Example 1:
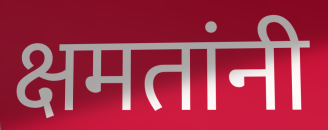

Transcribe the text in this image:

क्षमतांनी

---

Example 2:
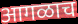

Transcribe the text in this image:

आगळाच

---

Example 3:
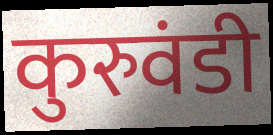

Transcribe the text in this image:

कुरुवंडी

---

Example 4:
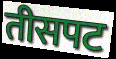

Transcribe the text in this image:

तीसपट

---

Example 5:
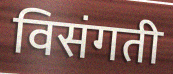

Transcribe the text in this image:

विसंगती